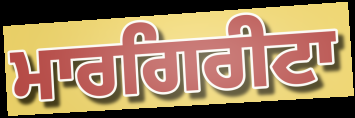
ਮਾਰਗਿਰੀਟਾ